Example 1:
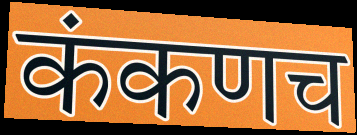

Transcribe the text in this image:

कंकणच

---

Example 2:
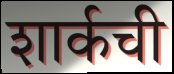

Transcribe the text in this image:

शार्कची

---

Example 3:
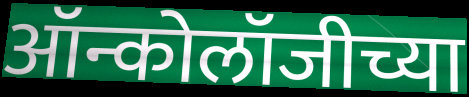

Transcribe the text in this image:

ऑन्कोलॉजीच्या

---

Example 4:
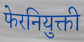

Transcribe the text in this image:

फेरनियुक्ती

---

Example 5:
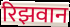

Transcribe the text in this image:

रिझवान